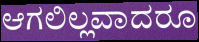
ಆಗಲಿಲ್ಲವಾದರೂ